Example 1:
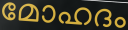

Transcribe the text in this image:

മോഹദം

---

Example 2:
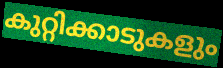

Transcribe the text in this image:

കുറ്റിക്കാടുകളും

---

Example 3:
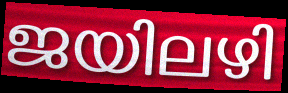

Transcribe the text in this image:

ജയിലഴി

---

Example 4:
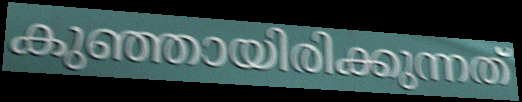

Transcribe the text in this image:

കുഞ്ഞായിരിക്കുന്നത്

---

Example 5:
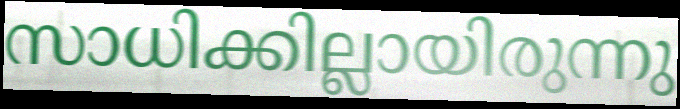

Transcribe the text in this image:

സാധിക്കില്ലായിരുന്നു